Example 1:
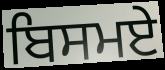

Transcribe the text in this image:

ਬਿਸਮਏ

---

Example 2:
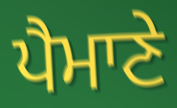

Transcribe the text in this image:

ਪੈਮਾਣੇ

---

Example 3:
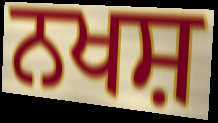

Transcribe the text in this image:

ਨਖਸ਼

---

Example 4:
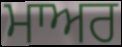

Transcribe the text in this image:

ਮਾਅਰ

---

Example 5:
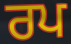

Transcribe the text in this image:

ਰਪ